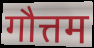
गौत्तम